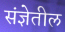
संज्ञेतील